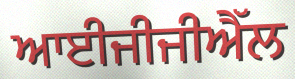
ਆਈਜੀਜੀਐੱਲ